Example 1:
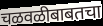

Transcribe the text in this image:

चळवळीबाबतचा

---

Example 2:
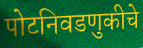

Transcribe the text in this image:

पोटनिवडणुकीचे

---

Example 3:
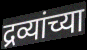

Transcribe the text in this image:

द्रव्यांच्या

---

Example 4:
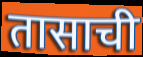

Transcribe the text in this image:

तासाची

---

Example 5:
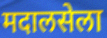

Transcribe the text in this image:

मदालसेला